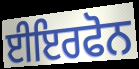
ਈਇਰਫੋਨ